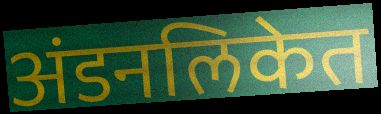
अंडनलिकेत